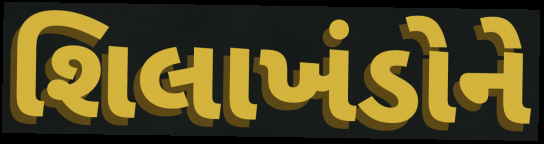
શિલાખંડોને